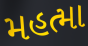
મહત્મા